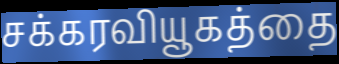
சக்கரவியூகத்தை